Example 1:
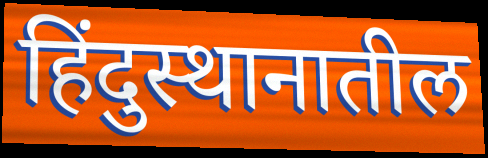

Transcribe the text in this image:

हिंदुस्थानातील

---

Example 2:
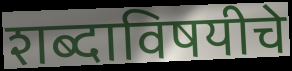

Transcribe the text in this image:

शब्दाविषयीचे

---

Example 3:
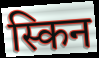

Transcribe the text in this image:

स्किन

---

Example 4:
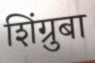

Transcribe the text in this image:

शिंग्रुबा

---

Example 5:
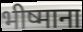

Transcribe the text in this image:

भीष्माना